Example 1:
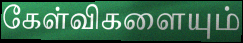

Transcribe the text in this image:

கேள்விகளையும்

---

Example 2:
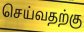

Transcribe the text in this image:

செய்வதற்கு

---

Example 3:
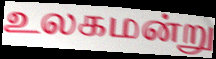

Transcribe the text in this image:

உலகமன்று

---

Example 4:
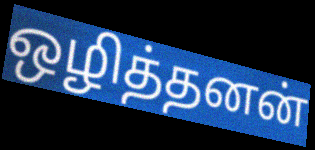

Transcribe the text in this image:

ஒழித்தனன்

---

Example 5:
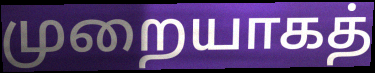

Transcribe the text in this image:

முறையாகத்